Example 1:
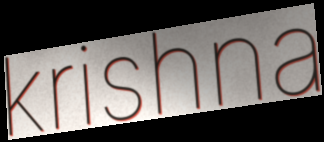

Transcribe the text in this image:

krishna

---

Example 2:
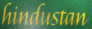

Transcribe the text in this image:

hindustan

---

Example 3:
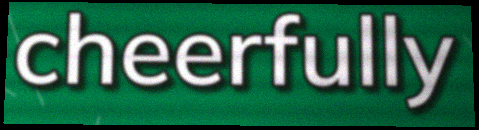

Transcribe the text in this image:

cheerfully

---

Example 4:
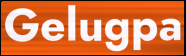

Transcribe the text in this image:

Gelugpa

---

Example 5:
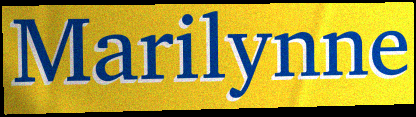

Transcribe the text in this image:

Marilynne